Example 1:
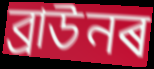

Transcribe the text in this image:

ব্ৰাউনৰ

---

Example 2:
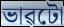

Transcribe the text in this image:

ভাৱটো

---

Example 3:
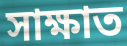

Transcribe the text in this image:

সাক্ষাত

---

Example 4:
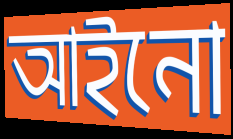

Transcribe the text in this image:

আইনো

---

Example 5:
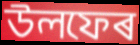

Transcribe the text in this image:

উলফেৰ